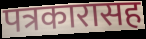
पत्रकारासह